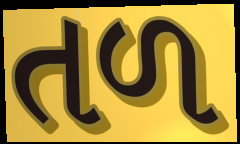
તળ